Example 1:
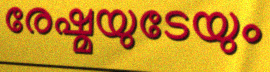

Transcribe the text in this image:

രേഷ്മയുടേയും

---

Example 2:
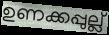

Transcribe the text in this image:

ഉണക്കപ്പുല്ല്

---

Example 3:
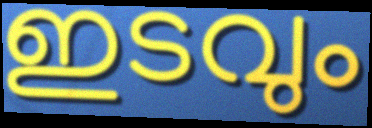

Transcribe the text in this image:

ഇടവും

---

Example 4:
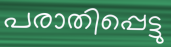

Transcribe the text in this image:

പരാതിപ്പെട്ടു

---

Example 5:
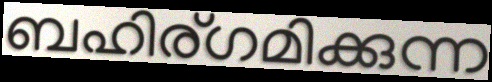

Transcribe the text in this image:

ബഹിര്ഗമിക്കുന്ന